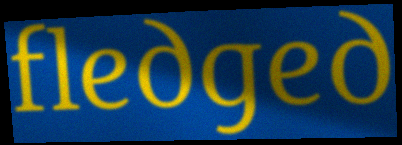
fledged